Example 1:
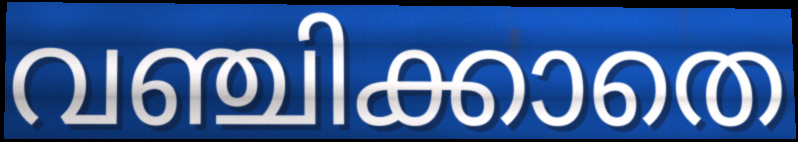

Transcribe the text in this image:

വഞ്ചിക്കാതെ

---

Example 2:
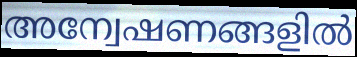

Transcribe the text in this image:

അന്വേഷണങ്ങളിൽ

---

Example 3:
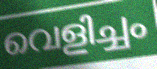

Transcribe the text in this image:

വെളിച്ചം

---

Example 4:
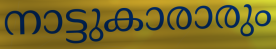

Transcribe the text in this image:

നാട്ടുകാരാരും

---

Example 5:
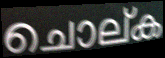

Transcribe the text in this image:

ചൊല്ക